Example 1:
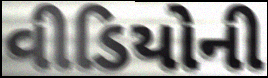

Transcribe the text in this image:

વીડિયોની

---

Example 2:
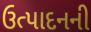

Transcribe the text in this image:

ઉત્પાદનની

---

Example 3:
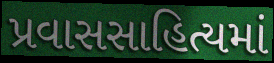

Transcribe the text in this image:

પ્રવાસસાહિત્યમાં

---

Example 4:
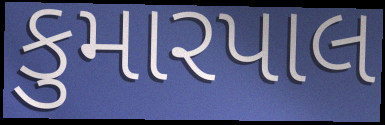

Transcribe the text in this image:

કુમારપાલ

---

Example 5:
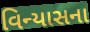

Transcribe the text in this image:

વિન્યાસના